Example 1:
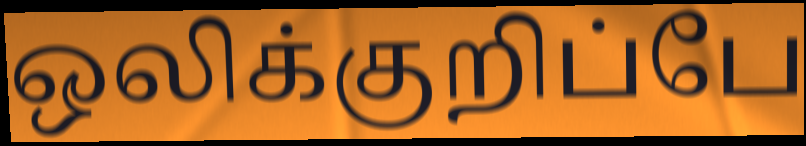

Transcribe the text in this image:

ஒலிக்குறிப்பே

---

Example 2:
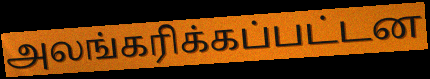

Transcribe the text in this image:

அலங்கரிக்கப்பட்டன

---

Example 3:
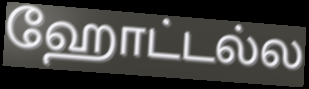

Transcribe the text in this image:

ஹோட்டல்ல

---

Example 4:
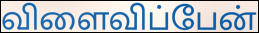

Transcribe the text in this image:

விளைவிப்பேன்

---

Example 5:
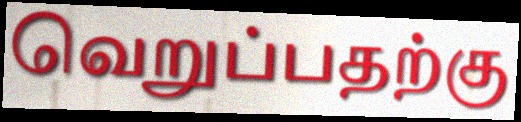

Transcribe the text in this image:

வெறுப்பதற்கு